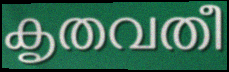
കൃതവതീ